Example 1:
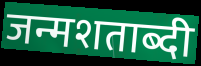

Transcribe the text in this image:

जन्मशताब्दी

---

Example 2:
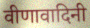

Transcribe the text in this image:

वीणावादिनी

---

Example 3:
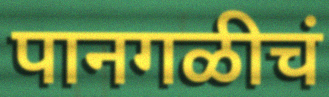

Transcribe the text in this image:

पानगळीचं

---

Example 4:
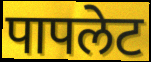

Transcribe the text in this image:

पापलेट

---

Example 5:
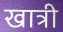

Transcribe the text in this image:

खात्री